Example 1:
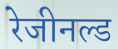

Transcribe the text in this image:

रेजीनल्ड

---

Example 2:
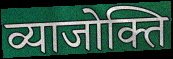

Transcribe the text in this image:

व्याजोक्ति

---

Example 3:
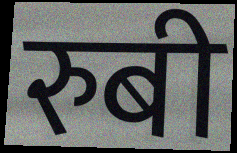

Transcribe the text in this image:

रुबी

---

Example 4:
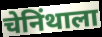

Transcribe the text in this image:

चेनिंथाला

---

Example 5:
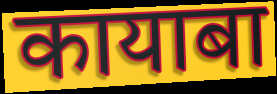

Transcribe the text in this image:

कायाबा